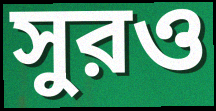
সুরও